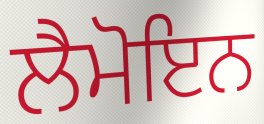
ਲੈਮੋਇਨ